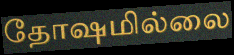
தோஷமில்லை